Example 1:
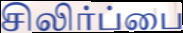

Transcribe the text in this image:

சிலிர்ப்பை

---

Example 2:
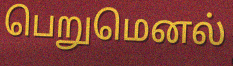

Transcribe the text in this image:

பெறுமெனல்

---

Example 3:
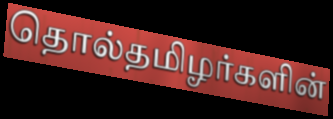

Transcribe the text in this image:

தொல்தமிழர்களின்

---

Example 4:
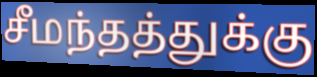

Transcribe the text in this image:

சீமந்தத்துக்கு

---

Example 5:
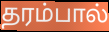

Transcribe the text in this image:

தரம்பால்